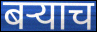
बऱ्याच